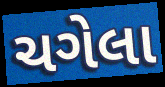
ચગેલા